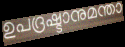
ഉപദ്രഷ്ടാനുമന്താ